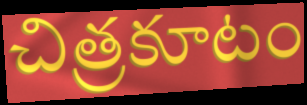
చిత్రకూటం